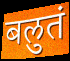
बलुतं